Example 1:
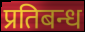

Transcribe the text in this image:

प्रतिबन्ध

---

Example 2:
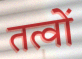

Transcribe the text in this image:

तत्वों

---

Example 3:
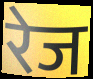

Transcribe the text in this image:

रेज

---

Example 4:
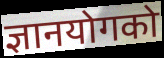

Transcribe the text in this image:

ज्ञानयोगको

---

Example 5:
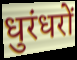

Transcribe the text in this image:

धुरंधरों